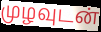
முழவுடன்